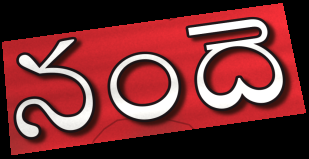
నందె